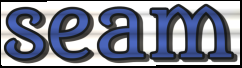
seam